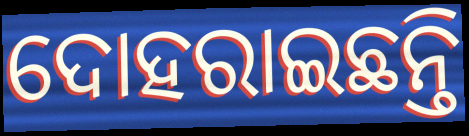
ଦୋହରାଇଛନ୍ତି